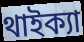
থাইক্যা